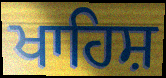
ਖਾਹਿਸ਼